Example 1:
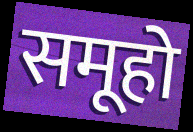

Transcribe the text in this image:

समूहो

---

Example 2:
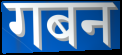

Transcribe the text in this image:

गबन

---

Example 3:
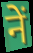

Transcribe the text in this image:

नें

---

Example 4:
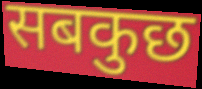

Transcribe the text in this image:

सबकुछ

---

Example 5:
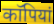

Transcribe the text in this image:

कॉपियां